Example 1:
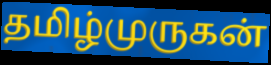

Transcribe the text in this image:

தமிழ்முருகன்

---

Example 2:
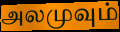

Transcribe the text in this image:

அலமுவும்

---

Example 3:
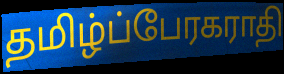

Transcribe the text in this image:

தமிழ்ப்பேரகராதி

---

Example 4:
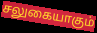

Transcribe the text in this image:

சலுகையாகும்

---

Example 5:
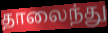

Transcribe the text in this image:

தாலைந்து